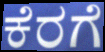
ಕೆರಗೆ